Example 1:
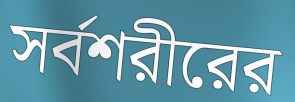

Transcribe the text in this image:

সর্বশরীরের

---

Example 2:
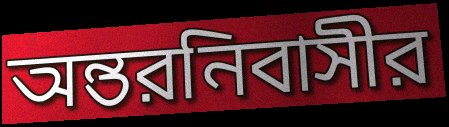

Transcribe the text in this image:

অন্তরনিবাসীর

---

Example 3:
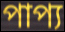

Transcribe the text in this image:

পাপ্য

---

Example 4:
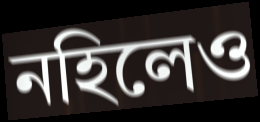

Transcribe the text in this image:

নহিলেও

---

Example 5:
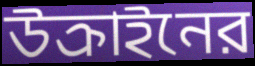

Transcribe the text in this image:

উক্রাইনের